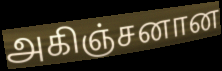
அகிஞ்சனான